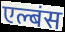
एल्बंस